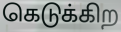
கெடுக்கிற